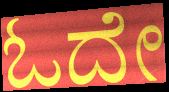
ಓದೇ